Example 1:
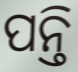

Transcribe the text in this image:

ପନ୍ତି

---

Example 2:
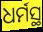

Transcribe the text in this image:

ଧର୍ମସ୍ଥ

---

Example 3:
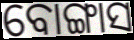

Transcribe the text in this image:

ବୋଙ୍ଗାସ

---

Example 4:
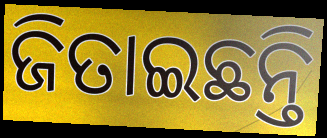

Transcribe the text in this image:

ଜିତାଇଛନ୍ତି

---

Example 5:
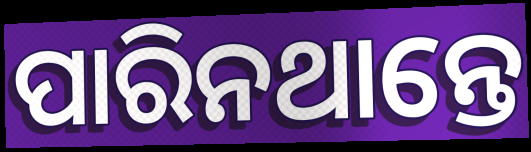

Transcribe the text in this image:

ପାରିନଥାନ୍ତେ